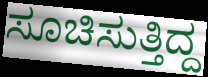
ಸೂಚಿಸುತ್ತಿದ್ದ